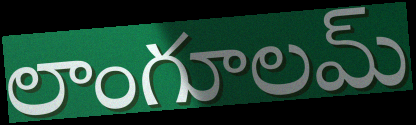
లాంగూలమ్